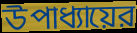
উপাধ্যায়ের